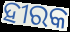
ହୀରକ